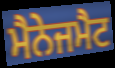
ਮੈਨੇਜਮੈਟ